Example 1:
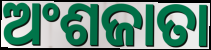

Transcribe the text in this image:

ଅଂଶଜାତା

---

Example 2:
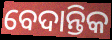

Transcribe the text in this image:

ବେଦାନ୍ତିକ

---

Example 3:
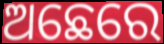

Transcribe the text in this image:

ଅଛେରେ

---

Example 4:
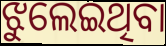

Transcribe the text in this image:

ଝୁଲେଇଥିବା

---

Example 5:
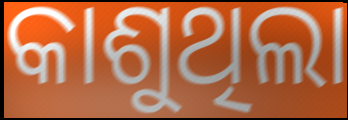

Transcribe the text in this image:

କାଶୁଥିଲା